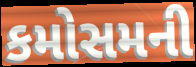
કમોસમની